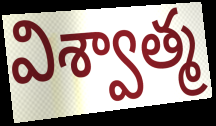
విశ్వాత్మ